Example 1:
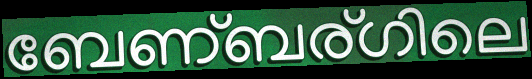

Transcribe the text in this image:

ബേണ്ബര്ഗിലെ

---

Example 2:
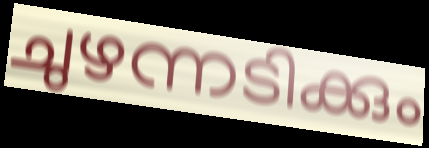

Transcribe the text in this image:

ചുഴന്നടിക്കും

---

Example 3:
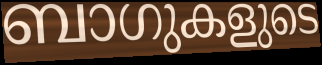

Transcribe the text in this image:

ബാഗുകളുടെ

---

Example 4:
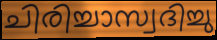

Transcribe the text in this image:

ചിരിച്ചാസ്വദിച്ചു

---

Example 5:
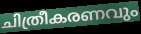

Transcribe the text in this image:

ചിത്രീകരണവും